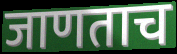
जाणताच